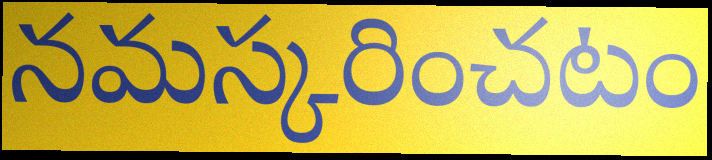
నమస్కరించటం